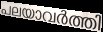
പലയാവർത്തി